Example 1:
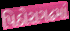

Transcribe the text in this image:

પિઠોરાગઢમાં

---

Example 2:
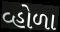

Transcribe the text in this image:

વ્હોળા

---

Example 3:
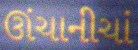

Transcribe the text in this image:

ઊંચાનીચાં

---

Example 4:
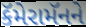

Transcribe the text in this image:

કૅમેરામૅનને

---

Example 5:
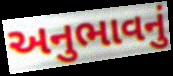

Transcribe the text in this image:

અનુભાવનું